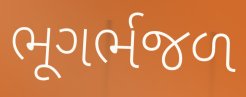
ભૂગર્ભજળ